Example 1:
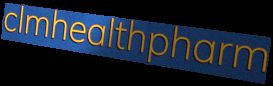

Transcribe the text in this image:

clmhealthpharm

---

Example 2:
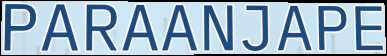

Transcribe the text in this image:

PARAANJAPE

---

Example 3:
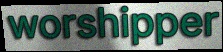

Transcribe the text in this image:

worshipper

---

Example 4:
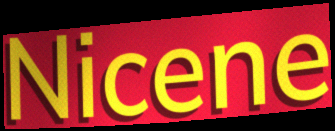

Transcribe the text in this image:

Nicene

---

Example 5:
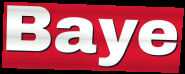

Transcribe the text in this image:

Baye